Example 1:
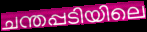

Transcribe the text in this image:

ചന്തപ്പടിയിലെ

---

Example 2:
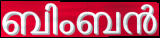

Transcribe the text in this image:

ബിംബൻ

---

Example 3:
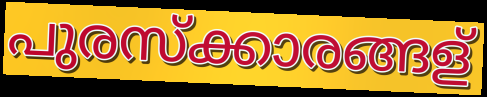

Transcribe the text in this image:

പുരസ്ക്കാരങ്ങള്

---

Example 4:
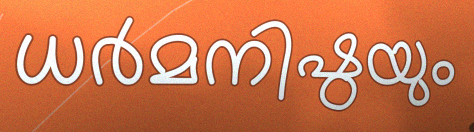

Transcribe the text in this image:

ധർമനിഷ്ഠയും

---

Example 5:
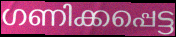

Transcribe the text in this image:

ഗണിക്കപ്പെട്ട